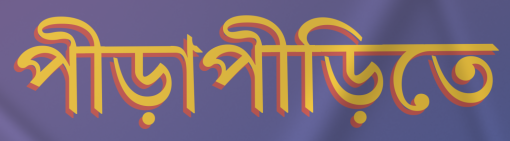
পীড়াপীড়িতে